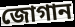
জোগান